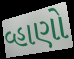
વ્હાણો